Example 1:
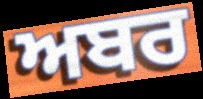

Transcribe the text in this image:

ਅਬਰ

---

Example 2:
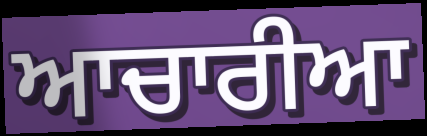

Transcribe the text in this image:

ਆਚਾਰੀਆ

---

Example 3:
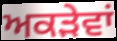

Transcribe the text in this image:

ਅਕੜੇਵਾਂ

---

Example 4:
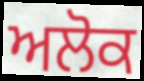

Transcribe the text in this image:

ਅਲੋਕ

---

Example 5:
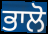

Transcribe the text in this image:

ਭਾਲੋ